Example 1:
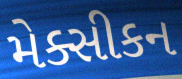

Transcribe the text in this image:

મેક્સીકન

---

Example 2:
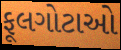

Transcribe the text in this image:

ફૂલગોટાઓ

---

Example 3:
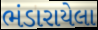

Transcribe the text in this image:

ભંડારાયેલા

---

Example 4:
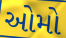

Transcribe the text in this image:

ઓમો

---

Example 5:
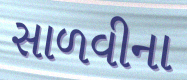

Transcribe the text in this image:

સાળવીના